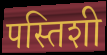
पस्तिशी